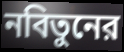
নবিতুনের